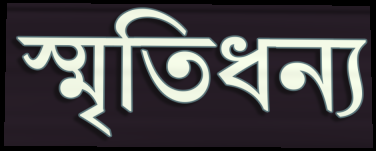
স্মৃতিধন্য